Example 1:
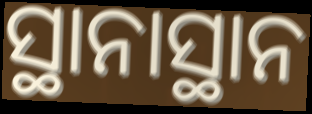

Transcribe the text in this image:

ସ୍ଥାନାସ୍ଥାନ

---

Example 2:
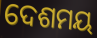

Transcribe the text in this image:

ଦେଶମୟ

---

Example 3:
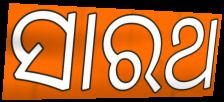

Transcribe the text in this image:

ସାରଥ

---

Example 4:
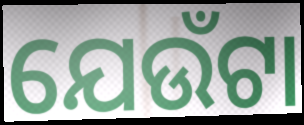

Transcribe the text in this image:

ଯେଉଁଟା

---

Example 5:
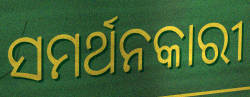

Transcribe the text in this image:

ସମର୍ଥନକାରୀ